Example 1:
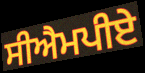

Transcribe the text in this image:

ਸੀਐਮਪੀਏ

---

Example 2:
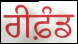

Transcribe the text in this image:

ਰੀਫ਼ੰਡ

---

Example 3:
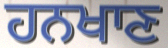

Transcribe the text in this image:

ਹਨਖਾਣ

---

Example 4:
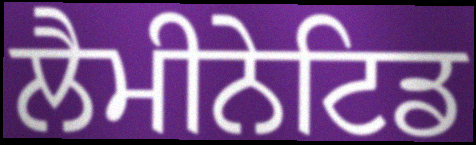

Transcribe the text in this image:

ਲੈਮੀਨੇਟਿਡ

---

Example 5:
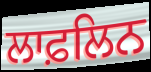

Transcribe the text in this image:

ਲਾਫ਼ਲਿਨ